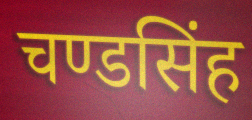
चण्डसिंह